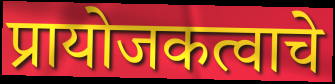
प्रायोजकत्वाचे